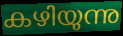
കഴിയുന്നു